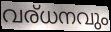
വര്ധനവും